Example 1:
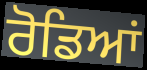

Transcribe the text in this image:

ਰੋਡਿਆਂ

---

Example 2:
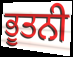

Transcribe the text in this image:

ਭੂਤਨੀ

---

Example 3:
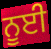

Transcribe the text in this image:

ਨੂਈ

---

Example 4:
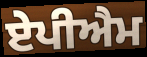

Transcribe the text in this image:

ਏਪੀਐਮ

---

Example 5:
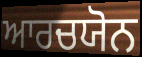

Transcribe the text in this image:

ਆਰਚਯੋਨ